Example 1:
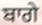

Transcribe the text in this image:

ਬਾਗੇ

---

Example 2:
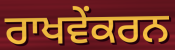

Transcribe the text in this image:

ਰਾਖਵੇਂਕਰਨ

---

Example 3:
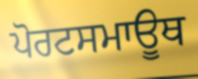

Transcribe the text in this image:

ਪੋਰਟਸਮਾਊਥ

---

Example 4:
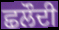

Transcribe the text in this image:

ਛਲੌਦੀ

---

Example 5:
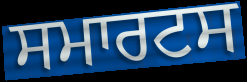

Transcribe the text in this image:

ਸਮਾਰਟਸ